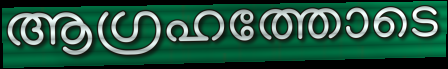
ആഗ്രഹത്തോടെ